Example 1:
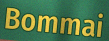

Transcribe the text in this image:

Bommai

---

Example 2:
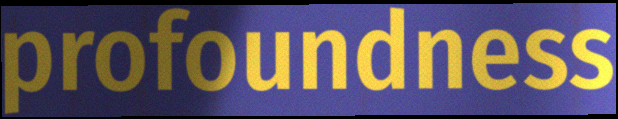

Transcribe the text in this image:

profoundness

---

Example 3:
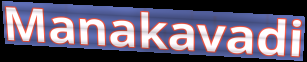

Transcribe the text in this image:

Manakavadi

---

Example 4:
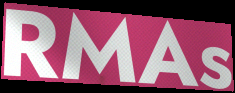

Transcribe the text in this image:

RMAs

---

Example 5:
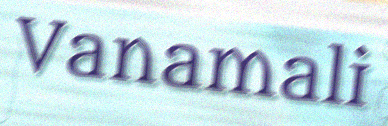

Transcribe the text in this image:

Vanamali